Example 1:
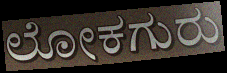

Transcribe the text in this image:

ಲೋಕಗುರು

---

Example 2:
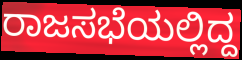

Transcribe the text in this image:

ರಾಜಸಭೆಯಲ್ಲಿದ್ದ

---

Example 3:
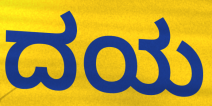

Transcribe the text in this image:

ದಯ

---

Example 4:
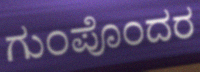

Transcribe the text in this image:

ಗುಂಪೊಂದರ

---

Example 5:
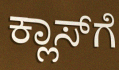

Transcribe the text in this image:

ಕ್ಲಾಸ್‌ಗೆ